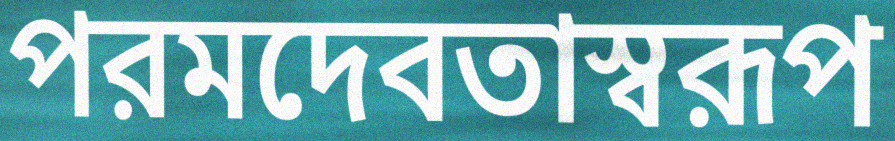
পরমদেবতাস্বরূপ